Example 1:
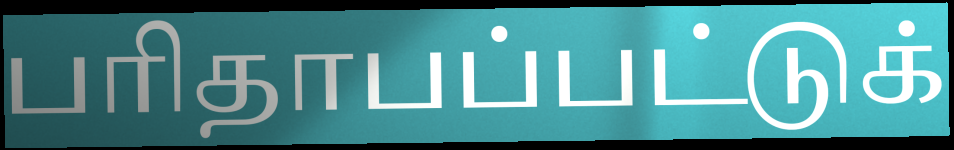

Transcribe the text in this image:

பரிதாபப்பட்டுக்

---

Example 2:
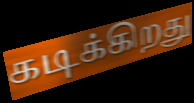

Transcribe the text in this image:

கடிக்கிறது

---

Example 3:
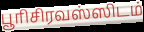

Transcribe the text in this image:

பூரிசிரவஸ்ஸிடம்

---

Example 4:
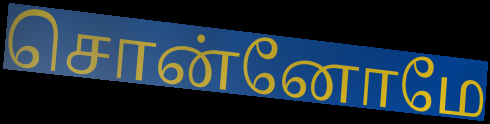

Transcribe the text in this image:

சொன்னோமே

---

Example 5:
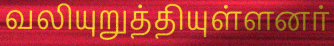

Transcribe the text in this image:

வலியுறுத்தியுள்ளனர்